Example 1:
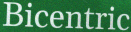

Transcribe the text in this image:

Bicentric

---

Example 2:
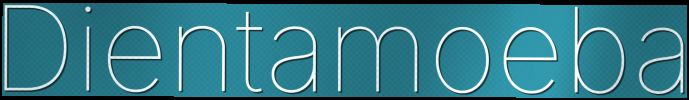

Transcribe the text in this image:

Dientamoeba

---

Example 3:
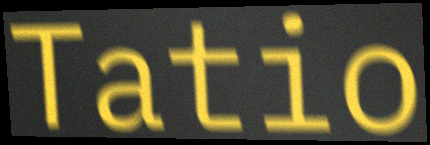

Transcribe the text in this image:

Tatio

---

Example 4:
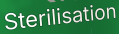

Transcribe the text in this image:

Sterilisation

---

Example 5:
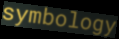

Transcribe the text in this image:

symbology